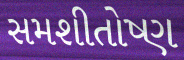
સમશીતોષ્ણ